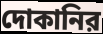
দোকানির